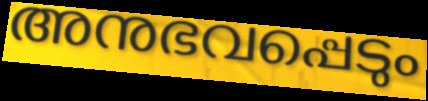
അനുഭവപ്പെടും